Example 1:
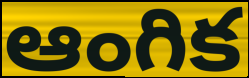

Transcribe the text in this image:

ఆంగిక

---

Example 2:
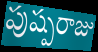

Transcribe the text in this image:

పుష్పరాజు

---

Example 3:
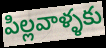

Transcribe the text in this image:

పిల్లవాళ్ళకు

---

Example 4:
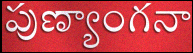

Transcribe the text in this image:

పుణ్యాంగనా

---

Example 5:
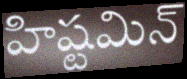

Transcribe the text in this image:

హిష్టమిన్